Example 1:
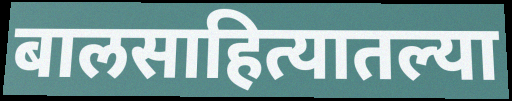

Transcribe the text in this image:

बालसाहित्यातल्या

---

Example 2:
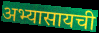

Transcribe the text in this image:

अभ्यासायची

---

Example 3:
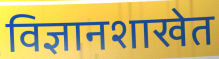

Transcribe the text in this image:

विज्ञानशाखेत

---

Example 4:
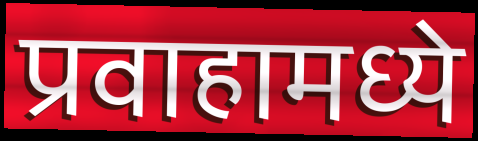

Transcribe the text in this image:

प्रवाहामध्ये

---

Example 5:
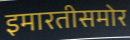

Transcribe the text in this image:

इमारतीसमोर